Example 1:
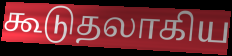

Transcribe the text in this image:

கூடுதலாகிய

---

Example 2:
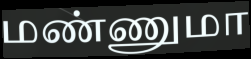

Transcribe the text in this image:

மண்ணுமா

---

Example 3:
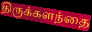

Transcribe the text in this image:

திருக்களந்தை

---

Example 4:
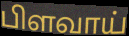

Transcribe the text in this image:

பிளவாய்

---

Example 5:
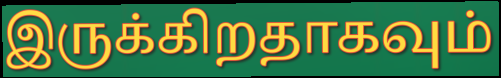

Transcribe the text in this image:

இருக்கிறதாகவும்